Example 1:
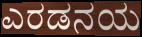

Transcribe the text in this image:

ಎರಡನಯ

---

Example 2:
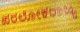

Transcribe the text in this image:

ಪರಲೋಕರಾಜ್ಯ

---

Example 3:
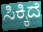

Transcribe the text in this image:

ಸಿಕ್ಕಿದೆ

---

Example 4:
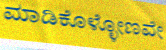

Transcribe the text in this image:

ಮಾಡಿಕೊಳ್ಳೋಣವೇ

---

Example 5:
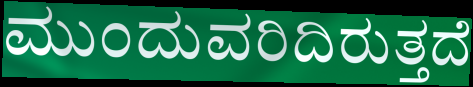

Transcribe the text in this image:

ಮುಂದುವರಿದಿರುತ್ತದೆ